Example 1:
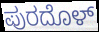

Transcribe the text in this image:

ಪುರದೊಳ್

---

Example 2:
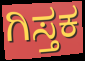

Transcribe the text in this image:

ಗಿಸ್ತಕ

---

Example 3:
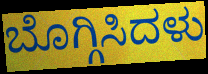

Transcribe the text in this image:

ಬೊಗ್ಗಿಸಿದಳು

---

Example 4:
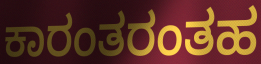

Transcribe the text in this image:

ಕಾರಂತರಂತಹ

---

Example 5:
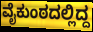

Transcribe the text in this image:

ವೈಕುಂಠದಲ್ಲಿದ್ದ